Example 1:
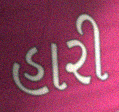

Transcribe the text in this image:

હારી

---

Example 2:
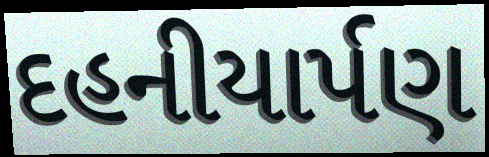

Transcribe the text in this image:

દહનીયાર્પણ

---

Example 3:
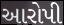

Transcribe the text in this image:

આરોપી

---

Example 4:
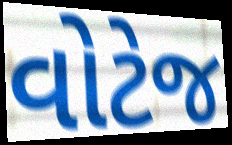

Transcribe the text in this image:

વોટેજ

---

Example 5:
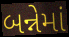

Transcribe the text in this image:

બન્નેમાં